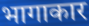
भागाकार